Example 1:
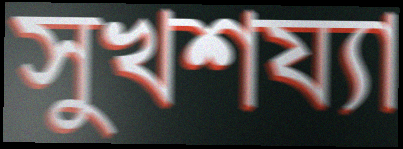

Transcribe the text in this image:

সুখশয্যা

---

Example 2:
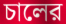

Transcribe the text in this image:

চালের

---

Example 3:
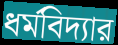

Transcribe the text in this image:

ধর্মবিদ্যার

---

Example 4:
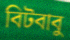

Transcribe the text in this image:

বিটবাবু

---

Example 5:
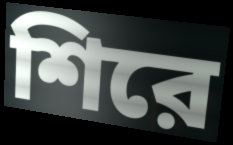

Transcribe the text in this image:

শিরে